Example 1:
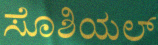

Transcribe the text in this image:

ಸೊಶಿಯಲ್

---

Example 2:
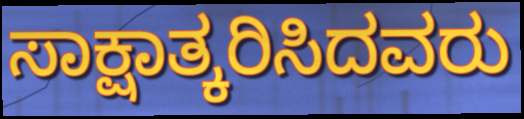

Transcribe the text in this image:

ಸಾಕ್ಷಾತ್ಕರಿಸಿದವರು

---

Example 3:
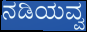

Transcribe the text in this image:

ನಡಿಯವ್ವ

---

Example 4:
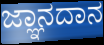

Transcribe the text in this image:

ಜ್ಞಾನದಾನ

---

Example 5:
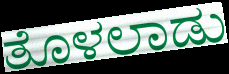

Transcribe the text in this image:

ತೊಳಲಾಡು